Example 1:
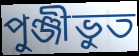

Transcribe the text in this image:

পুঞ্জীভুত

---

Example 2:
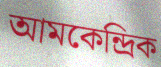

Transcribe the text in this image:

আমকেন্দ্রিক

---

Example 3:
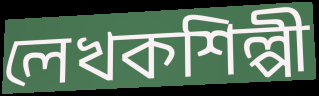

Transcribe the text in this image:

লেখকশিল্পী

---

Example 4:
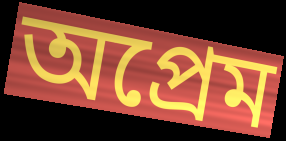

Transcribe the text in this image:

অপ্রেম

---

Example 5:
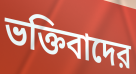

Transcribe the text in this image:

ভক্তিবাদের